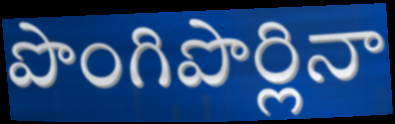
పొంగిపొర్లినా